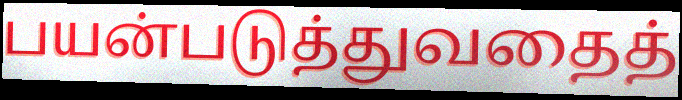
பயன்படுத்துவதைத்